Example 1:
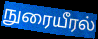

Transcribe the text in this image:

நுரையீரல்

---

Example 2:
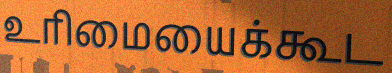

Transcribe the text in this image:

உரிமையைக்கூட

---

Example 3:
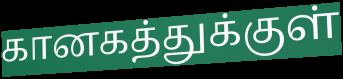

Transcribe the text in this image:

கானகத்துக்குள்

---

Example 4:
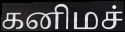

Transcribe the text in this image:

கனிமச்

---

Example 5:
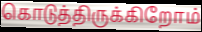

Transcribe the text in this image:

கொடுத்திருக்கிறோம்